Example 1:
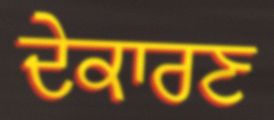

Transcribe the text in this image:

ਦੇਕਾਰਣ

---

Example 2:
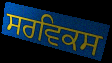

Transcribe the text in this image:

ਸਰਵਿਕਸ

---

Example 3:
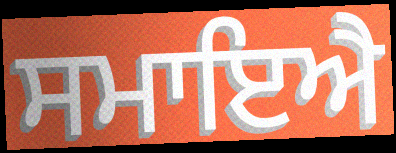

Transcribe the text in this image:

ਸਮਾਇਐ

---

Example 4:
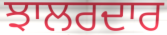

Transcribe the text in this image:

ਝਾਲਰਦਾਰ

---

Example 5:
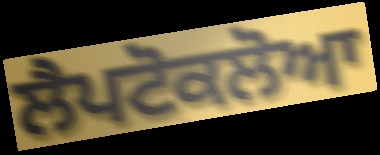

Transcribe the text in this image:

ਲੈਪਟੋਕਲੋਆ